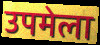
उपमेला